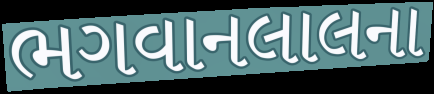
ભગવાનલાલના